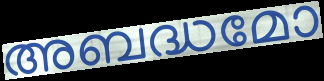
അബദ്ധമോ